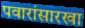
पवारांसारखा